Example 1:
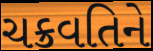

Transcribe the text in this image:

ચક્રવતિને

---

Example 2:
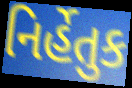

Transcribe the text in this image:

નિર્હેતુક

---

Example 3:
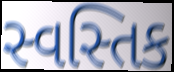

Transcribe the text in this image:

સ્વસ્તિક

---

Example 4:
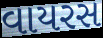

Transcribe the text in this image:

વાયરસ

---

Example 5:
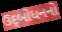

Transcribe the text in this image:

ઉદ્‌બોધનનો